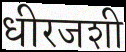
धीरजशी